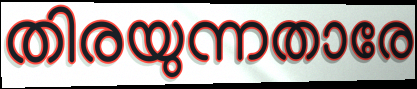
തിരയുന്നതാരേ